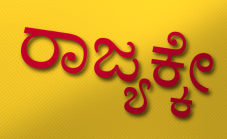
ರಾಜ್ಯಕ್ಕೇ